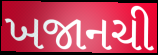
ખજાનચી